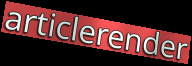
articlerender